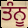
ਤੰਨੂ